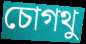
চোগথু